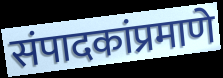
संपादकांप्रमाणे